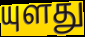
யுளது